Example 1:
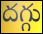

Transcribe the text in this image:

దగ్గు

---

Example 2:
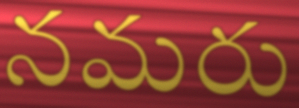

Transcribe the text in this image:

నమరు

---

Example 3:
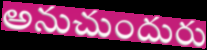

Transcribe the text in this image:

అనుచుందురు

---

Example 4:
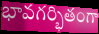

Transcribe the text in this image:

భావగర్భితంగా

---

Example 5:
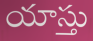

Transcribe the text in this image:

యాస్తు